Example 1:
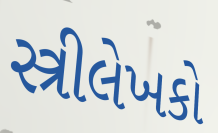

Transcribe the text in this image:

સ્ત્રીલેખકો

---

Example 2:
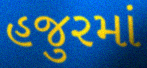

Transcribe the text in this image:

હજુરમાં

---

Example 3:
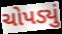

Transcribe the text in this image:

ચોપડ્યું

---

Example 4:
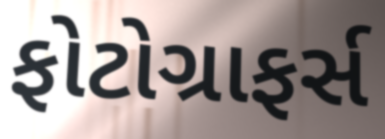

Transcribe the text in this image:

ફોટોગ્રાફર્સ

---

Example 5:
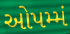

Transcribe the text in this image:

ઓપમ્મં